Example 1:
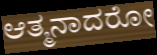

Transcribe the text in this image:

ಆತ್ಮನಾದರೋ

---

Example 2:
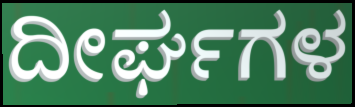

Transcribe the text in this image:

ದೀರ್ಘಗಳ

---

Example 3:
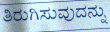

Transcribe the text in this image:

ತಿರುಗಿಸುವುದನ್ನು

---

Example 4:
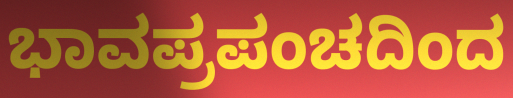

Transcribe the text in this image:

ಭಾವಪ್ರಪಂಚದಿಂದ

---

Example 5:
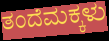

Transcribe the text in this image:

ತಂದೆಮಕ್ಕಳು